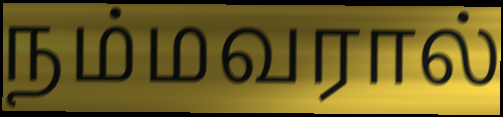
நம்மவரால்